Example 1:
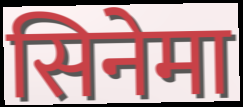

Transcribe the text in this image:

सिनेमा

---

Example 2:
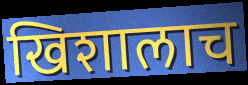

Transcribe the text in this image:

खिशालाच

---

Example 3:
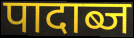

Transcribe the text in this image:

पादाब्ज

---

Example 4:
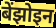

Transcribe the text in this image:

बेंझोइन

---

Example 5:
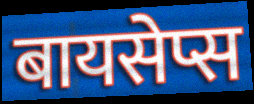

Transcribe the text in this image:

बायसेप्स